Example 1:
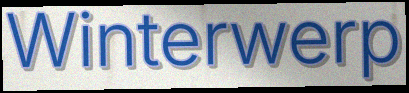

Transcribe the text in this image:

Winterwerp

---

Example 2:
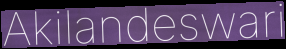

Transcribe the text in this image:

Akilandeswari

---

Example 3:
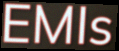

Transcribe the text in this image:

EMIs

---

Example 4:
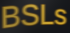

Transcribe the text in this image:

BSLs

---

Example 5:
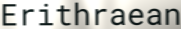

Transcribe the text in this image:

Erithraean